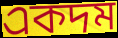
একদম